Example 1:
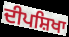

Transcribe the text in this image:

ਦੀਪਸ਼ਿਖਾ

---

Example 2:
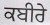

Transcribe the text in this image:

ਕਬੀਰੇ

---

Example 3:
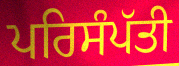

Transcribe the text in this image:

ਪਰਿਸੰਪੱਤੀ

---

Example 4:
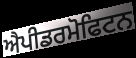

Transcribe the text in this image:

ਐਪੀਡਰਮੋਫਿਟਨ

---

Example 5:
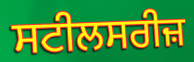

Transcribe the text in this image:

ਸਟੀਲਸਰੀਜ਼